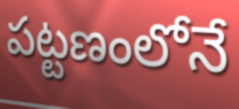
పట్టణంలోనే